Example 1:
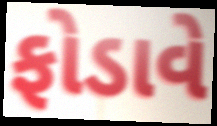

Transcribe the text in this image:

ફોડાવે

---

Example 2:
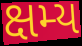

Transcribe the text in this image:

ક્ષમ્ય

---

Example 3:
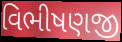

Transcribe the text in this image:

વિભીષણજી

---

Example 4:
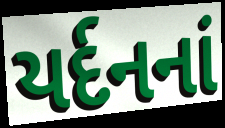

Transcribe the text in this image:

યર્દનનાં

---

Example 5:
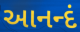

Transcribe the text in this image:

આનન્દં